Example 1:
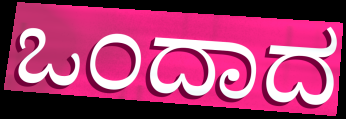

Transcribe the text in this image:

ಒಂದಾದ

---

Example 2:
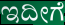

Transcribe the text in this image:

ಇದೀಗೆ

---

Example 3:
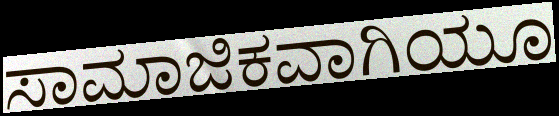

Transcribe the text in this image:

ಸಾಮಾಜಿಕವಾಗಿಯೂ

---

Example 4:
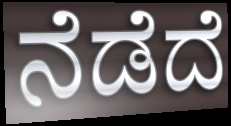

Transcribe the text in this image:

ನೆಡೆದೆ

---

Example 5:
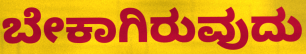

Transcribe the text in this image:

ಬೇಕಾಗಿರುವುದು